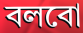
বলবো